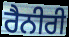
ਰੈਨੀਰੀ